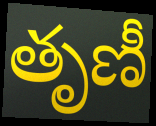
తృణీ